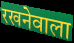
रखनेवाला